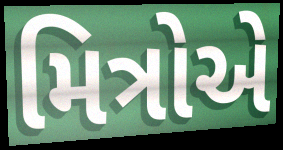
મિત્રોએ